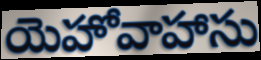
యెహోవాహాసు